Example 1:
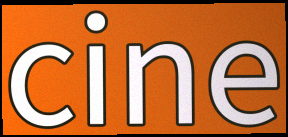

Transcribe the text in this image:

cine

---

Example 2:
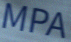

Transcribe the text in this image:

MPA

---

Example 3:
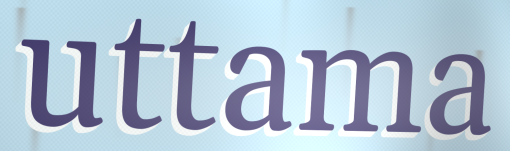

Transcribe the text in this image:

uttama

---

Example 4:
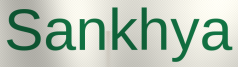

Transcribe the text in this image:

Sankhya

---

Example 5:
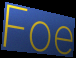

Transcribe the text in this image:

Foe